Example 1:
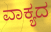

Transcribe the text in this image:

ವಾಕ್ಯದ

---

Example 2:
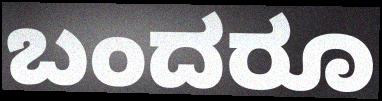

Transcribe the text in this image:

ಬಂದರೂ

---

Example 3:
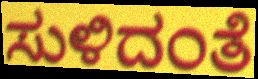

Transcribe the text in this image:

ಸುಳಿದಂತೆ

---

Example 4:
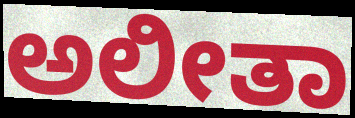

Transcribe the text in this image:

ಅಲೀತಾ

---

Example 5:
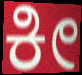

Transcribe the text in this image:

ಕೀ